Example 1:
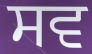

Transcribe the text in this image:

ਸਵ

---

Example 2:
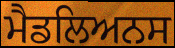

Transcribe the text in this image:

ਮੈਡਲਿਅਨਸ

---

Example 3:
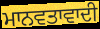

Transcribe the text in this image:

ਮਾਨਵਤਾਵਾਦੀ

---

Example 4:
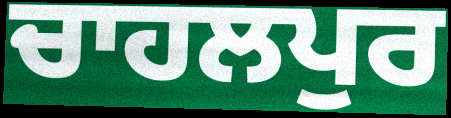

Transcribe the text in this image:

ਚਾਹਲਪੁਰ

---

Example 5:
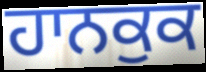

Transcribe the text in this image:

ਹਾਨਕੁਕ